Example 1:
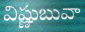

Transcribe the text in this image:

విష్ణుబువా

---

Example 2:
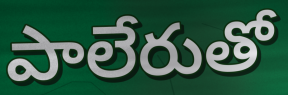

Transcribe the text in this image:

పాలేరుతో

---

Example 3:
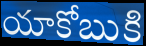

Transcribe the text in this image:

యాకోబుకి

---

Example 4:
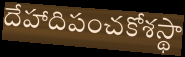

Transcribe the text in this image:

దేహాదిపంచకోశస్థా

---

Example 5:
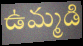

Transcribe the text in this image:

ఉమ్మడి